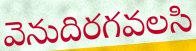
వెనుదిరగవలసి